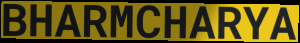
BHARMCHARYA